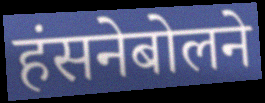
हंसनेबोलने